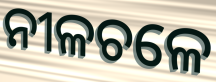
ନୀଳଚଳେ